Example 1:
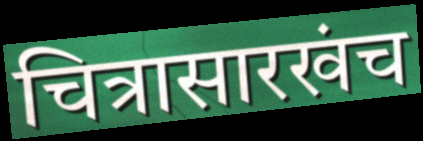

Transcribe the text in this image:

चित्रासारखंच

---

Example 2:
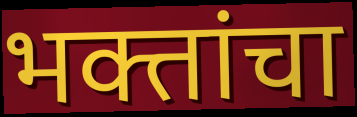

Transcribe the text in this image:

भक्तांचा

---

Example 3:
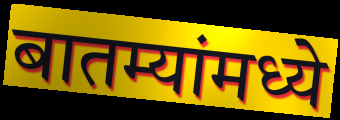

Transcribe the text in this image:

बातम्यांमध्ये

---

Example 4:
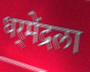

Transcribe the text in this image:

धर्मेंद्रला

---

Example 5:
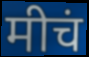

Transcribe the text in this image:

मीचं